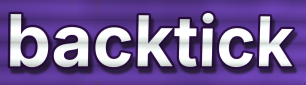
backtick